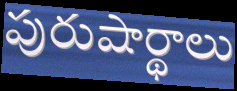
పురుషార్థాలు